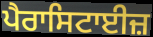
ਪੈਰਾਸਿਟਾਈਜ਼